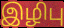
இழிபு